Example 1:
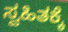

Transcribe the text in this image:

ಸ್ವಹಿತಕ್ಕೆ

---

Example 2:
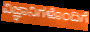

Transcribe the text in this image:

ವಿಜ್ಞಾನಿಗಳೊಂದಿಗೆ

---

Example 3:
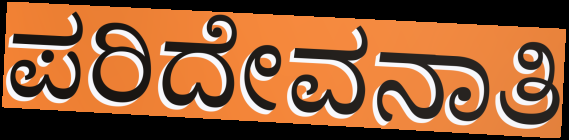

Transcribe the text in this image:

ಪರಿದೇವನಾತಿ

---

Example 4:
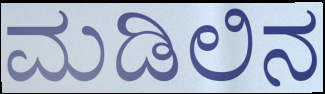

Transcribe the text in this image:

ಮಡಿಲಿನ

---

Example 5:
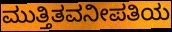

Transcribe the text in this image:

ಮುತ್ತಿತವನೀಪತಿಯ